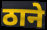
ठाने